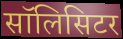
सॉलिसिटर